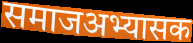
समाजअभ्यासक